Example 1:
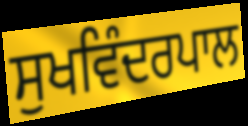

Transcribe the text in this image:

ਸੁਖਵਿੰਦਰਪਾਲ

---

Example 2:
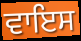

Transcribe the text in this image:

ਵਾਇਸ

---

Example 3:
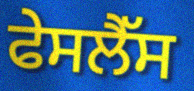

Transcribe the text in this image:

ਫੇਸਲੈੱਸ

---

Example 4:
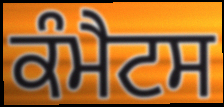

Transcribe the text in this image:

ਕੰਮੈਟਸ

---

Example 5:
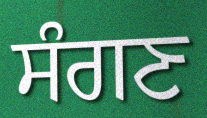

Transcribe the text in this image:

ਸੰਗਣ